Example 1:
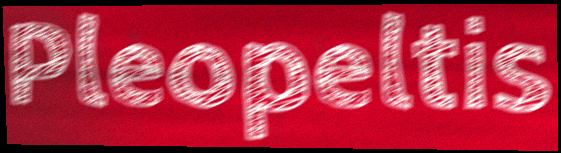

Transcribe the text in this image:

Pleopeltis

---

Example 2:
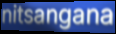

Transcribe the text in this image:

nitsangana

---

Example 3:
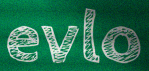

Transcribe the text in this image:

evlo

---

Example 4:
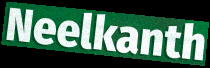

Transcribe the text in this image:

Neelkanth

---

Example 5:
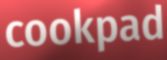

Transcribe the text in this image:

cookpad